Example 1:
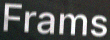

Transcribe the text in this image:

Frams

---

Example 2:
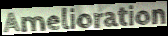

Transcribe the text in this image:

Amelioration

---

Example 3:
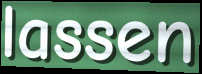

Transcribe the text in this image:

lassen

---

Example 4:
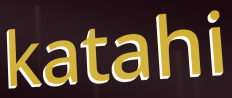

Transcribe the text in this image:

katahi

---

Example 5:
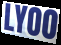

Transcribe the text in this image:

LYOO